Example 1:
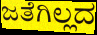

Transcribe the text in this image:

ಜತೆಗಿಲ್ಲದ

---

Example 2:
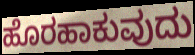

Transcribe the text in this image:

ಹೊರಹಾಕುವುದು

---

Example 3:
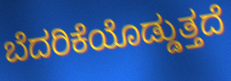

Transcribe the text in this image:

ಬೆದರಿಕೆಯೊಡ್ಡುತ್ತದೆ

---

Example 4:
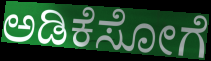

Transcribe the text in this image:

ಅಡಿಕೆಸೋಗೆ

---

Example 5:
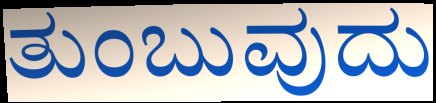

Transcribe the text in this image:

ತುಂಬುವುದು